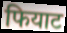
फियाट